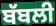
ਬੱਬਲੀ